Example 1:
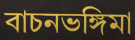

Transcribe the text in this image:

বাচনভঙ্গিমা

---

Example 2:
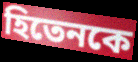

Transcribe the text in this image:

হিতেনকে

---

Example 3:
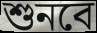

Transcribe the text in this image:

শুনবে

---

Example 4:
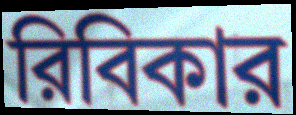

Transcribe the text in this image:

রিবিকার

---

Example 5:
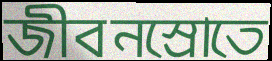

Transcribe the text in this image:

জীবনস্রোতে